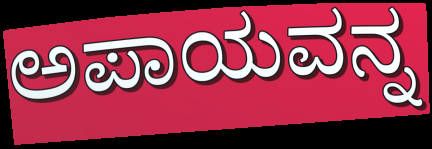
ಅಪಾಯವನ್ನ